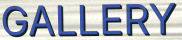
GALLERY